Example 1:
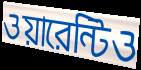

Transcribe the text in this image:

ওয়ারেন্টিও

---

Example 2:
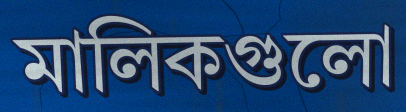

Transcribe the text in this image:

মালিকগুলো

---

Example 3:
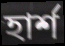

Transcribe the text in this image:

হার্শ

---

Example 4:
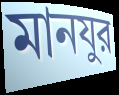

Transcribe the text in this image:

মানযুর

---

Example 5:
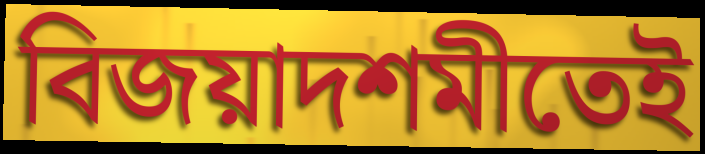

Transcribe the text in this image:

বিজয়াদশমীতেই